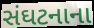
સંઘટનાના